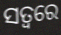
ସତ୍ଵରେ